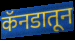
कॅनडातून